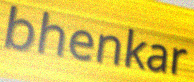
bhenkar